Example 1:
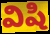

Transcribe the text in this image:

విషి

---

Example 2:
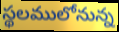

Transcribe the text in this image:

స్థలములోనున్న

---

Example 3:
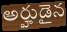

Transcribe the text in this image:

అర్హుడైన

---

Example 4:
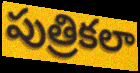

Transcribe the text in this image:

పుత్రికలా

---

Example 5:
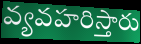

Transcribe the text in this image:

వ్యవహరిస్తారు